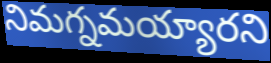
నిమగ్నమయ్యారని